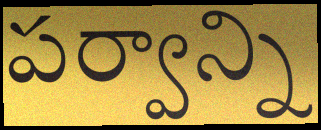
పర్వాన్ని